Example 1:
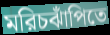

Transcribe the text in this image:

মরিচঝাঁপিতে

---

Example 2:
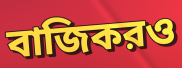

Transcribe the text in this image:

বাজিকরও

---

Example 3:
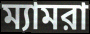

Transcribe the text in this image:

ম্যামরা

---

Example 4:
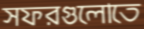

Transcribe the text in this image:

সফরগুলোতে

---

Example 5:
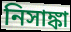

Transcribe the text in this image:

নিসাঙ্কা